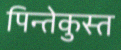
पिन्तेकुस्त